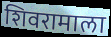
शिवरामाला